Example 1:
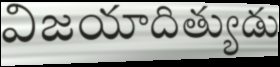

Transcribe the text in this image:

విజయాదిత్యుడు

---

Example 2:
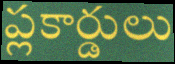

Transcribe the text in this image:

ప్లకార్డులు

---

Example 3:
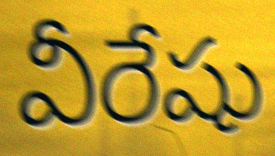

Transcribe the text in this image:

వీరేషు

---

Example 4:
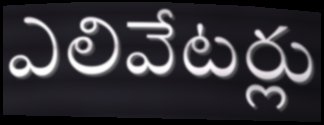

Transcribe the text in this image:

ఎలివేటర్లు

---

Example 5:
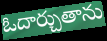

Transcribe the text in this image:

ఓదార్చుతాను